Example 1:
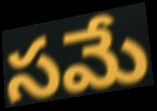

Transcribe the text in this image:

సమే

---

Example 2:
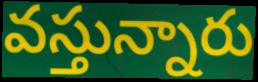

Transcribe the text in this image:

వస్తున్నారు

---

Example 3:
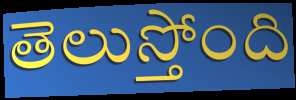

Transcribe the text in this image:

తెలుస్తోంది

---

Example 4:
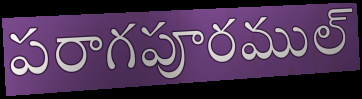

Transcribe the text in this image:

పరాగపూరముల్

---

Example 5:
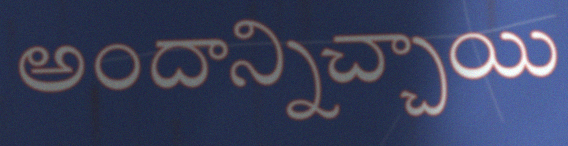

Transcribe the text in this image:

అందాన్నిచ్చాయి